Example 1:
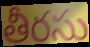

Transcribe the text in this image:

తీరసు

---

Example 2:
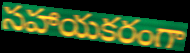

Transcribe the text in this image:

సహాయకరంగా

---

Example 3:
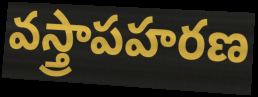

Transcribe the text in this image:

వస్త్రాపహరణ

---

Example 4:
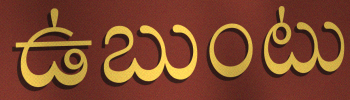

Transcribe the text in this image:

ఉబుంటు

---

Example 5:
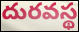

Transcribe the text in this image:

దురవస్థ